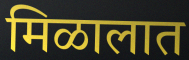
मिळालात